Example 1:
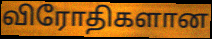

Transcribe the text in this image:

விரோதிகளான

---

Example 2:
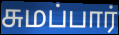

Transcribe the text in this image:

சுமப்பார்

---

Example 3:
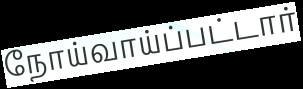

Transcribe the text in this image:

நோய்வாய்ப்பட்டார்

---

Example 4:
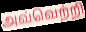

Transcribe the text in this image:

அவ்வெற்றி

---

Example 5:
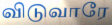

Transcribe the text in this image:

விடுவாரே